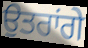
ਉਤਰਾਂਗੇ